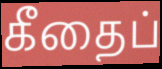
கீதைப்